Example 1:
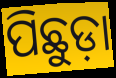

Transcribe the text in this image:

ପିଛୁଡ଼ା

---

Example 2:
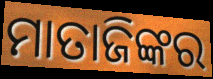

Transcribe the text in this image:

ମାତାଜିଙ୍କର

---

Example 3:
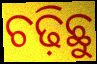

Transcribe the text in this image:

ଚଢ଼ିଛୁ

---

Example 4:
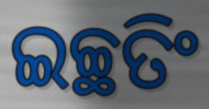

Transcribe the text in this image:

ଇଚ୍ଛତିଂ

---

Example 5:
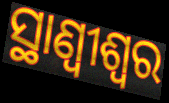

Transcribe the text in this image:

ସ୍ଥାଣ୍ୱୀଶ୍ଵର